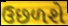
ઉછળશે